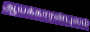
ஆயக்காரன்புலம்